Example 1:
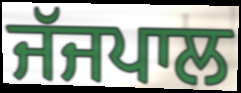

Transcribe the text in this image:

ਜੱਜਪਾਲ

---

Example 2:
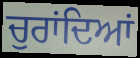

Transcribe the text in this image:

ਚੁਰਾਂਦਿਆਂ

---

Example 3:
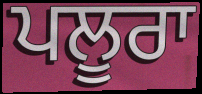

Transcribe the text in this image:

ਪਲੂਰਾ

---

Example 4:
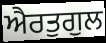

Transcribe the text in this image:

ਐਰਤੁਗੁਲ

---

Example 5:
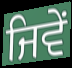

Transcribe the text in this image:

ਜਿਵੇੰ